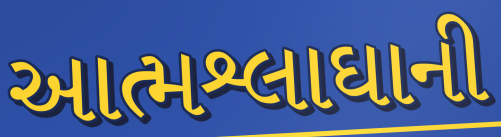
આત્મશ્લાઘાની